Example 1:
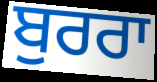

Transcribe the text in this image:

ਬੁਰਰਾ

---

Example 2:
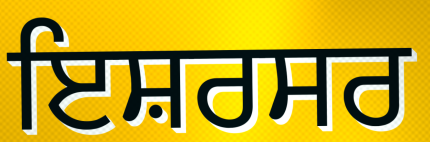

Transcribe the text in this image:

ਇਸ਼ਰਸਰ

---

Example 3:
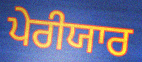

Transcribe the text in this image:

ਪੇਰੀਯਾਰ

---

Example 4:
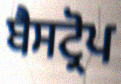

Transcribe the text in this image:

ਬੈਸਟ੍ਰੋਪ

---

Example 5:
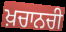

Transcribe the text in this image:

ਖ਼ਚਾਨਚੀ